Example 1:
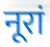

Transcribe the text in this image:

नूरां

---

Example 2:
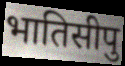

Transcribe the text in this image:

भातिसीपु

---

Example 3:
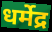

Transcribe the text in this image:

धर्मेद्र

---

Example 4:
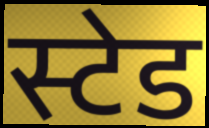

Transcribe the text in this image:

स्टेड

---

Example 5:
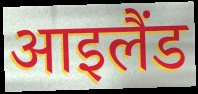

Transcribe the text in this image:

आइलैंड